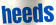
heeds